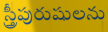
స్త్రీపురుషులను